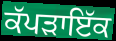
ਕੱਪੜਾਇੱਕ